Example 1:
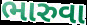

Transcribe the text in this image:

ભારુવા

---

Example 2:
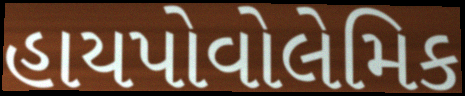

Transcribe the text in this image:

હાયપોવોલેમિક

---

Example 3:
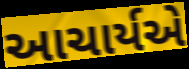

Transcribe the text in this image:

આચાર્યએ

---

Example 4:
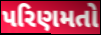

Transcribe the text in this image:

પરિણમતો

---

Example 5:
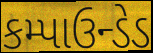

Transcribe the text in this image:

કમ્પાઉન્ડેડ